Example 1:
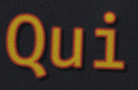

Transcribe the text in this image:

Qui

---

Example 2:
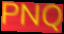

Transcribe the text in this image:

PNQ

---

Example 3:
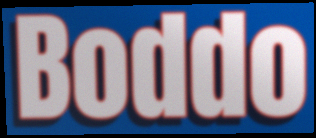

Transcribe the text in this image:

Boddo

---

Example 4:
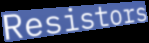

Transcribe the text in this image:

Resistors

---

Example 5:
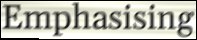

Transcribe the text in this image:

Emphasising